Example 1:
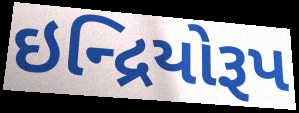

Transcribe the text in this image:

ઇન્દ્રિયોરૂપ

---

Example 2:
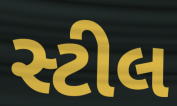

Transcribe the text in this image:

સ્ટીલ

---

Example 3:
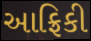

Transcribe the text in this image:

આફ્રિકી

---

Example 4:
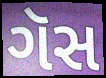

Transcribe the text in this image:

ગૅસ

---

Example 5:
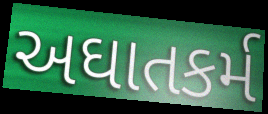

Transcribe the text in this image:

અઘાતકર્મ